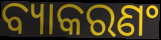
ବ୍ୟାକରଣଂ